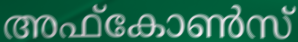
അഫ്കോൺസ്